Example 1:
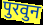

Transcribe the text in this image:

पुरवुन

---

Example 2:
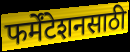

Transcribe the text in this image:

फर्मेंटेशनसाठी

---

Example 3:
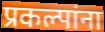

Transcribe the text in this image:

प्रकल्पांना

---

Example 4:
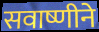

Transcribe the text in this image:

सवाष्णीने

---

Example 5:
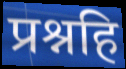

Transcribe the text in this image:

प्रश्नहि